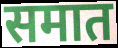
समात